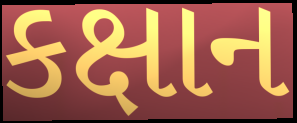
કક્ષાન